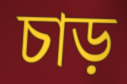
চাড়